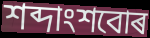
শব্দাংশবোৰ